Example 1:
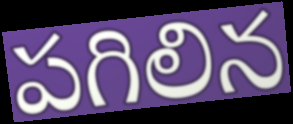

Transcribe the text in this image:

పగిలిన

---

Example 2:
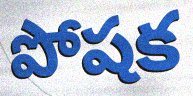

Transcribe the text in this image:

పోషక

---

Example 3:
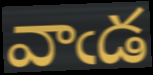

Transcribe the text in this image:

వాఁడ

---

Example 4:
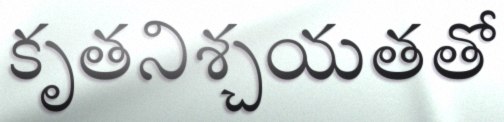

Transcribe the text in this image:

కృతనిశ్చయతతో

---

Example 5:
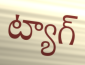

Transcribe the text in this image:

ట్యాగ్